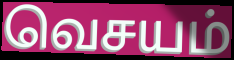
வெசயம்